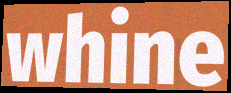
whine